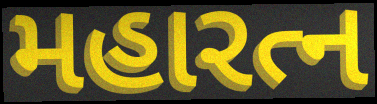
મહારત્ન